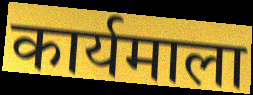
कार्यमाला